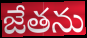
జేతను